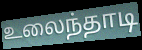
உலைந்தாடி